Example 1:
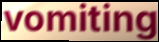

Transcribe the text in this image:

vomiting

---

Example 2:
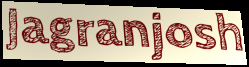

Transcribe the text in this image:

Jagranjosh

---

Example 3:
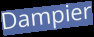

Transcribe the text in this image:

Dampier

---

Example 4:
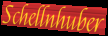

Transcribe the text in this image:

Schellnhuber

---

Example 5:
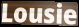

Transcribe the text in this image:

Lousie